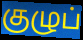
குழுப்